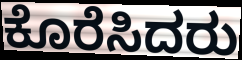
ಕೊರೆಸಿದರು